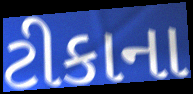
ટીકાના